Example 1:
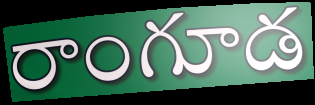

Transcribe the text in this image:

రాంగూడ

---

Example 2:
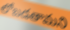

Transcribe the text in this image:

లోబడతామని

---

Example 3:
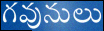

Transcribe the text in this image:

గవునులు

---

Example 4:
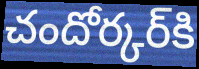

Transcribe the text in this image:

చందోర్కర్‌కి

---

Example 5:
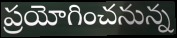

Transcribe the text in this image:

ప్రయోగించనున్న